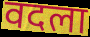
वदला